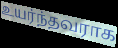
உயர்ந்தவராக